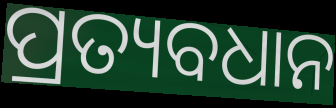
ପ୍ରତ୍ୟବଧାନ